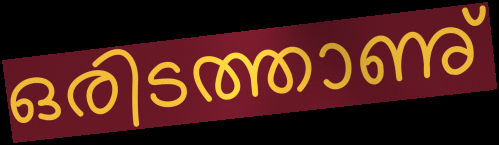
ഒരിടത്താണു്